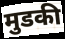
मुडकी